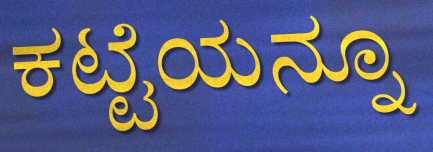
ಕಟ್ಟೆಯನ್ನೂ